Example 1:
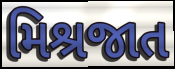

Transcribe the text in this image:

મિશ્રજાત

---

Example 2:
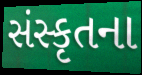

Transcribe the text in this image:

સંસ્‍કૃતના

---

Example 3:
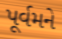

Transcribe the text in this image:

પૂર્વમને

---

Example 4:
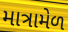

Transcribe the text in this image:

માત્રામેળ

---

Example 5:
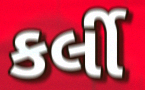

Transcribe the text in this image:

કર્લી